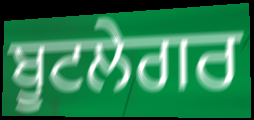
ਬੂਟਲੇਗਰ